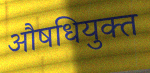
औषधियुक्त